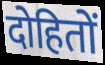
दोहितों